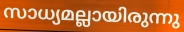
സാധ്യമല്ലായിരുന്നു